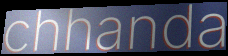
chhanda